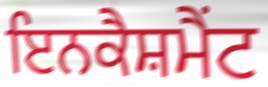
ਇਨਕੈਸ਼ਮੈਂਟ